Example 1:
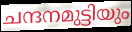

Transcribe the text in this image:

ചന്ദനമുട്ടിയും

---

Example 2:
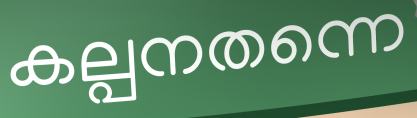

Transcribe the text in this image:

കല്പനതന്നെ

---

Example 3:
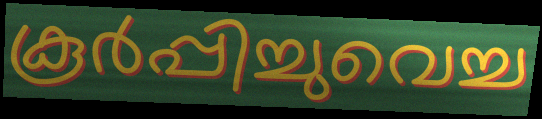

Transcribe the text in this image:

കൂർപ്പിച്ചുവെച്ച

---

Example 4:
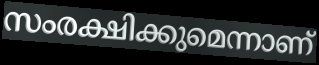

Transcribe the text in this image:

സംരക്ഷിക്കുമെന്നാണ്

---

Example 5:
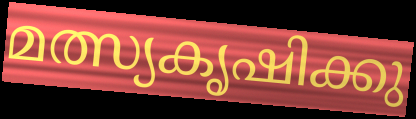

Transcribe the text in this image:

മത്സ്യകൃഷിക്കു